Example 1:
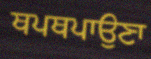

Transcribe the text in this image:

ਥਪਥਪਾਉਣਾ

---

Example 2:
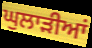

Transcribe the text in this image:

ਘੁਲਾੜੀਆਂ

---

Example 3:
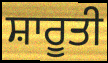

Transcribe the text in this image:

ਸ਼ਾਰੂਤੀ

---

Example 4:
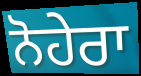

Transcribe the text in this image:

ਨੋਹੇਰਾ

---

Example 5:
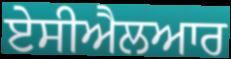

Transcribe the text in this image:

ਏਸੀਐਲਆਰ